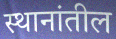
स्थानांतील